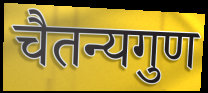
चैतन्यगुण